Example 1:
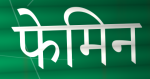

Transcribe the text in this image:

फेमिन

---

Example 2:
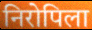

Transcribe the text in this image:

निरोपिला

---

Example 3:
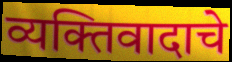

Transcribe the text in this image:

व्यक्तिवादाचे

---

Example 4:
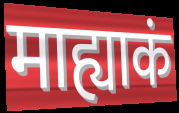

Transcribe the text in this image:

माह्याकं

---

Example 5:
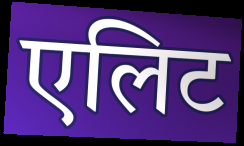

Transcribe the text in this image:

एलिट